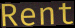
Rent